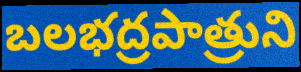
బలభద్రపాత్రుని